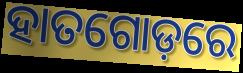
ହାତଗୋଡ଼ରେ